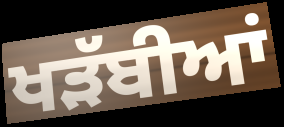
ਖੜੱਬੀਆਂ